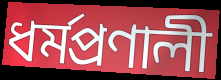
ধর্মপ্রণালী